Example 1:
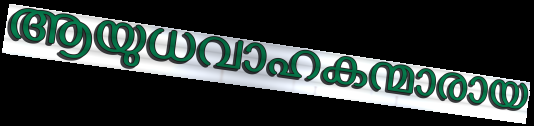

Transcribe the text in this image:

ആയുധവാഹകന്മാരായ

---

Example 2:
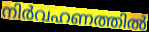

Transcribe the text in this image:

നിർവഹണത്തിൽ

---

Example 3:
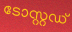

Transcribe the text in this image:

ടോസ്റ്റഡ്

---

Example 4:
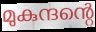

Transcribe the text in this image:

മുകുന്ദന്റെ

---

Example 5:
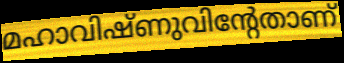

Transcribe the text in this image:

മഹാവിഷ്ണുവിന്റേതാണ്